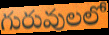
గురువులలో